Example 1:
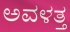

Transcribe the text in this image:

ಅವಳತ್ತ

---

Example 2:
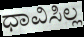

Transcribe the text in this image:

ಧಾವಿಸಿಲ್ಲ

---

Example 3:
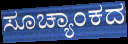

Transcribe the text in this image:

ಸೂಚ್ಯಾಂಕದ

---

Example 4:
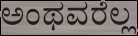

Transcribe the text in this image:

ಅಂಥವರೆಲ್ಲ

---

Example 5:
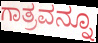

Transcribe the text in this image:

ಗಾತ್ರವನ್ನೂ